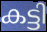
കട്ടി